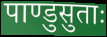
पाण्डुसुताः